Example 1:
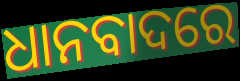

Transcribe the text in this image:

ଧାନବାଦରେ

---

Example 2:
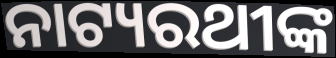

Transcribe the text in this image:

ନାଟ୍ୟରଥୀଙ୍କ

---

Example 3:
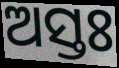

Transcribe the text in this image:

ଅସ୍ତଃ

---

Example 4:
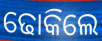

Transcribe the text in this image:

ଢୋକିଲେ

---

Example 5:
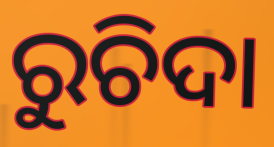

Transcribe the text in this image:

ରୁଚିଦା